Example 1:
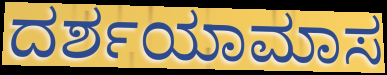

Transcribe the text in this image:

ದರ್ಶಯಾಮಾಸ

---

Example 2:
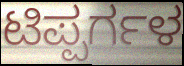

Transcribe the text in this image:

ಟಿಪ್ಪರ್ಗಳ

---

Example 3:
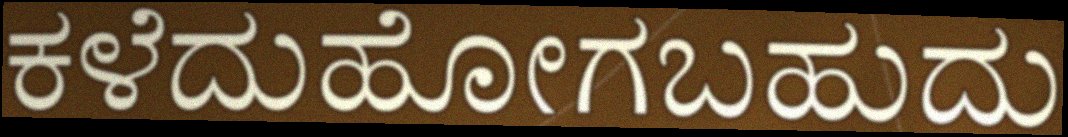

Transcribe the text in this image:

ಕಳೆದುಹೋಗಬಹುದು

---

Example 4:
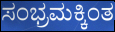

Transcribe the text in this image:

ಸಂಭ್ರಮಕ್ಕಿಂತ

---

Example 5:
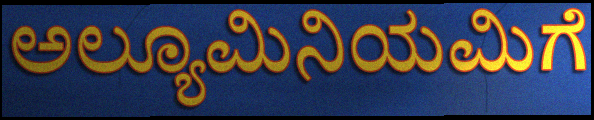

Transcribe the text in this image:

ಅಲ್ಯೂಮಿನಿಯಮಿಗೆ